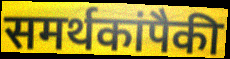
समर्थकांपैकी